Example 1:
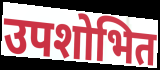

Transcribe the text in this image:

उपशोभित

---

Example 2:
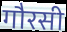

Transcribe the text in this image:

गौरसी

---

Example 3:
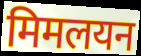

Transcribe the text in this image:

मिमलयन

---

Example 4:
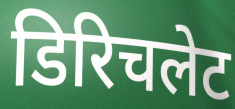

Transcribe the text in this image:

डिरिचलेट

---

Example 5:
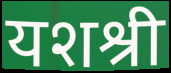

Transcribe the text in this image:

यशश्री